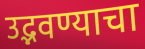
उद्भवण्याचा